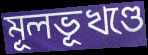
মূলভূখণ্ডে